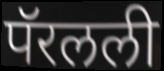
पॅरलली